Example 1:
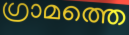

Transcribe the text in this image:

ഗ്രാമത്തെ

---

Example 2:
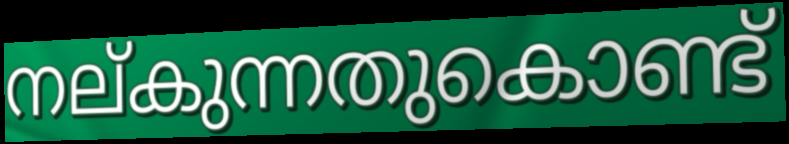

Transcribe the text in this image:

നല്കുന്നതുകൊണ്ട്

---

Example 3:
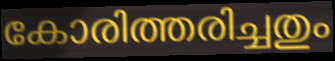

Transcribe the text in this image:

കോരിത്തരിച്ചതും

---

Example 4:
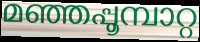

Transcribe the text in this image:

മഞ്ഞപ്പൂമ്പാറ്റ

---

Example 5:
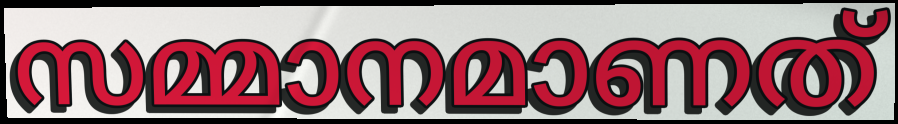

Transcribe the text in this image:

സമ്മാനമാണത്